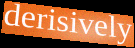
derisively